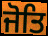
ਜੋਤਿ